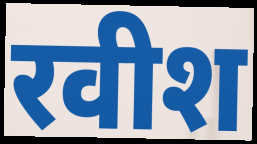
रवीश